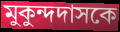
মুকুন্দদাসকে